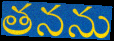
తనను